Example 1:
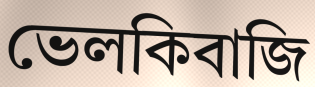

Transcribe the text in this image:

ভেলকিবাজি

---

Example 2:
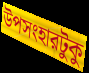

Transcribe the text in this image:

উপসংহারটুকু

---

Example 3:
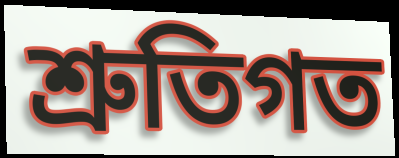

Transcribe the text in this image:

শ্রুতিগত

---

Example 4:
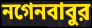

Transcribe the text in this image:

নগেনবাবুর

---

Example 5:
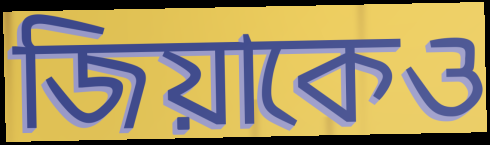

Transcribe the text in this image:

জিয়াকেও